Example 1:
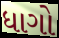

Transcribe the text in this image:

ધાગો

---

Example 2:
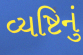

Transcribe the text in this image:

વ્યષ્ટિનું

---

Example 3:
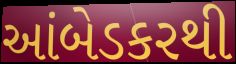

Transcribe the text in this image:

આંબેડકરથી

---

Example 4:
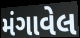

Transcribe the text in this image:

મંગાવેલ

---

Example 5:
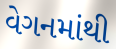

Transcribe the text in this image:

વેગનમાંથી